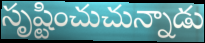
సృష్టించుచున్నాడు